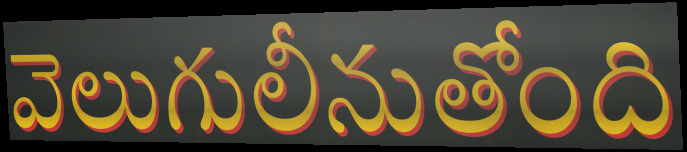
వెలుగులీనుతోంది